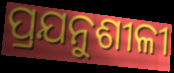
ପ୍ରଯନୁଶୀଳୀ